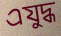
এযুদ্ধ